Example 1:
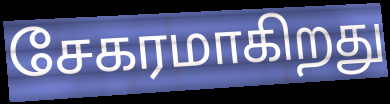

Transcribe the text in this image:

சேகரமாகிறது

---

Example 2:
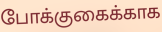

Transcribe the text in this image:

போக்குகைக்காக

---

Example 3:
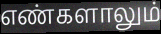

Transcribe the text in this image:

எண்களாலும்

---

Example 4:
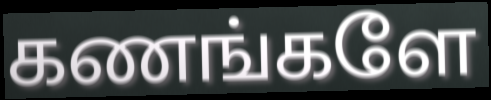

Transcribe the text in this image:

கணங்களே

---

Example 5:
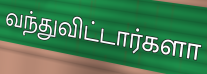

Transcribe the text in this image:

வந்துவிட்டார்களா